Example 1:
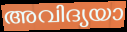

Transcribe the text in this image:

അവിദ്യയാ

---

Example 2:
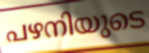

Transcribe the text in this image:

പഴനിയുടെ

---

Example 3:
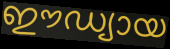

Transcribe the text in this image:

ഈഡ്യായ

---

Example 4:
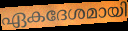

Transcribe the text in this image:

ഏകദേശമായി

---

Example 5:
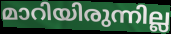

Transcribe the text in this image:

മാറിയിരുന്നില്ല